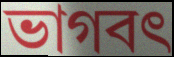
ভাগবৎ